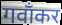
गवाँकर